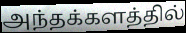
அந்தக்களத்தில்